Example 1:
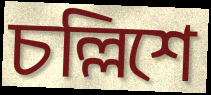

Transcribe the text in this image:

চল্লিশে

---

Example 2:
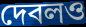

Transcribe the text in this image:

দেবলও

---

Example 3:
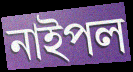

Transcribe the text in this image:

নাইপল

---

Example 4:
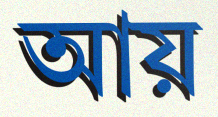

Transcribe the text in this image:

আয়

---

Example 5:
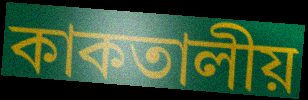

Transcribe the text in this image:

কাকতালীয়